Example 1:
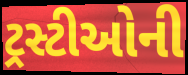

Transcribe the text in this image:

ટ્રસ્ટીઓની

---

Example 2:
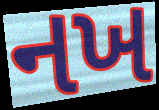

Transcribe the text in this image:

નખ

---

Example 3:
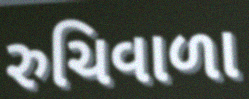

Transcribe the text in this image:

રુચિવાળા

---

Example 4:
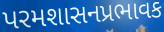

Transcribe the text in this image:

પરમશાસનપ્રભાવક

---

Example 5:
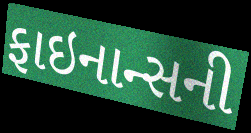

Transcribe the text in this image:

ફાઇનાન્સની